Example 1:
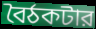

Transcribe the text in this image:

বৈঠকটার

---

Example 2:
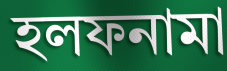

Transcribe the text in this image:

হলফনামা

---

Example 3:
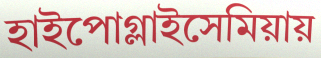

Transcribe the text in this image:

হাইপোগ্লাইসেমিয়ায়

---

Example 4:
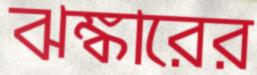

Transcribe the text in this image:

ঝঙ্কারের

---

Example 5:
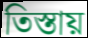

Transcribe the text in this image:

তিস্তায়